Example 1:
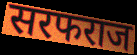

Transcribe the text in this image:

सरफराज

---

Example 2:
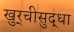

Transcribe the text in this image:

खुर्चीसुद्धा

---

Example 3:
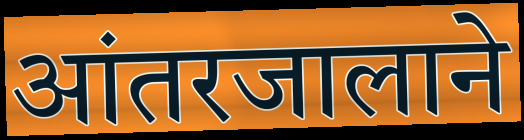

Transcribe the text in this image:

आंतरजालाने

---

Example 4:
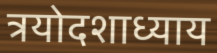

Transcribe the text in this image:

त्रयोदशाध्याय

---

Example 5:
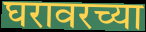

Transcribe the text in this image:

घरावरच्या